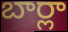
బార్లా